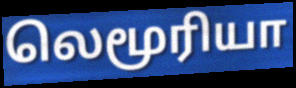
லெமூரியா